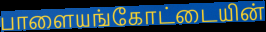
பாளையங்கோட்டையின்